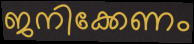
ജനിക്കേണം